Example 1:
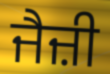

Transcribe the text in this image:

ਜੈਜ਼ੀ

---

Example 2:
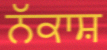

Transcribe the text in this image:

ਨੱਕਾਸ਼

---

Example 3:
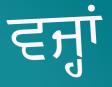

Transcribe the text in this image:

ਵਜ੍ਹਾਂ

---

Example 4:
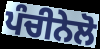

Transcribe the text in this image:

ਪੰਚੀਨੇਲੋ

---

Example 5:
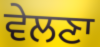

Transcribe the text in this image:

ਵੇਲਣਾ